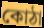
কোঠা